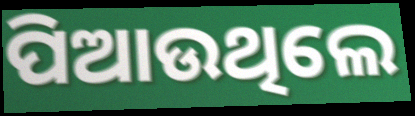
ପିଆଉଥିଲେ